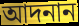
আদনান